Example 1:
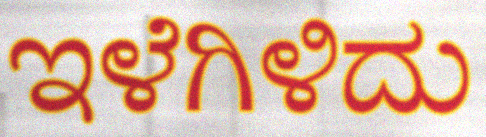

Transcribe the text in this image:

ಇಳೆಗಿಳಿದು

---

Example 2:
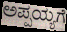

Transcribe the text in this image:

ಅಪ್ಪಯ್ಯಗೆ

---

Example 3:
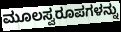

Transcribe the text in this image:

ಮೂಲಸ್ವರೂಪಗಳನ್ನು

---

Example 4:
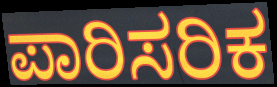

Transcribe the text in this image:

ಪಾರಿಸರಿಕ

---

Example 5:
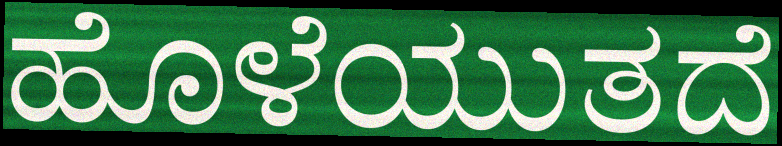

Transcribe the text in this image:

ಹೊಳೆಯುತದೆ